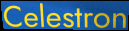
Celestron